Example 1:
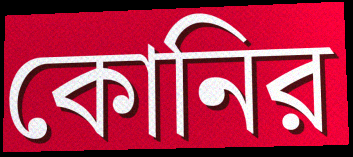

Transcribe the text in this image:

কোনির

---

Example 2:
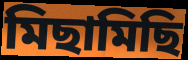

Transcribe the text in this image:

মিছামিছি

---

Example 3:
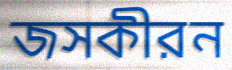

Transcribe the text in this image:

জসকীরন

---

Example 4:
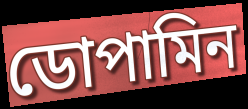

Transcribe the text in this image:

ডোপামিন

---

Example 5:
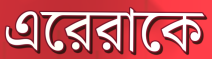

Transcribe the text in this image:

এরেরাকে